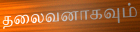
தலைவனாகவும்